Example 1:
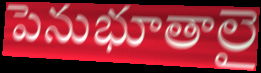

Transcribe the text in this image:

పెనుభూతాలై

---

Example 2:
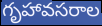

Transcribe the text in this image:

గృహావసరాల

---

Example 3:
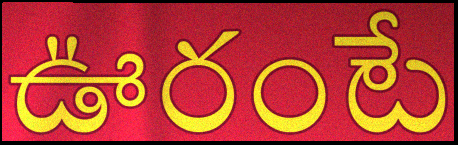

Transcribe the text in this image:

ఊరంటే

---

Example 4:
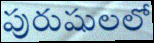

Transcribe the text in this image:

పురుషులలో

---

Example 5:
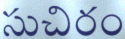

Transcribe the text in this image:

సుచిరం